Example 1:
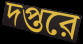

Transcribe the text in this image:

দপ্তরে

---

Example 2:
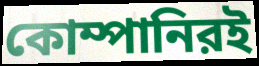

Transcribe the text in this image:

কোম্পানিরই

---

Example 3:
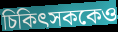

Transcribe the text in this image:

চিকিৎসককেও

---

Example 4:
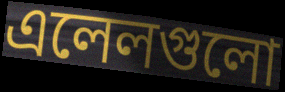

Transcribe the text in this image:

এলেলগুলো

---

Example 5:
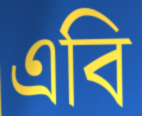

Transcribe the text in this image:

এবি